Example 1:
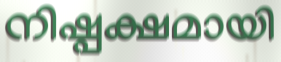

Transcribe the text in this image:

നിഷ്പക്ഷമായി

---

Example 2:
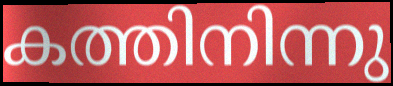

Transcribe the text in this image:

കത്തിനിന്നു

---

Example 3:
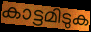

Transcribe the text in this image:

കാട്ടമിടുക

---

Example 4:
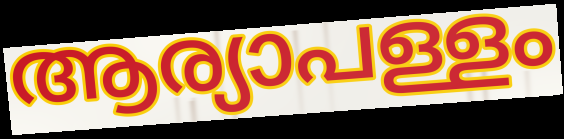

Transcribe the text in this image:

ആര്യാപള്ളം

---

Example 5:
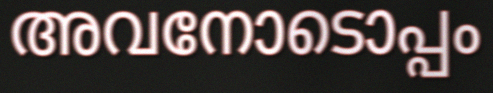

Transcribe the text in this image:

അവനോടൊപ്പം